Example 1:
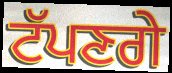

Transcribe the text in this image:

ਟੱਪਣਗੇ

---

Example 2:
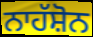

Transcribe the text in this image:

ਨਾਹੱਸ਼ੋਨ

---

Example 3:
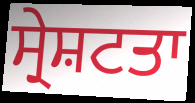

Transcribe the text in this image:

ਸ੍ਰੇਸ਼ਟਤਾ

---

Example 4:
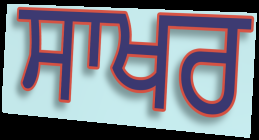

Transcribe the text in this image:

ਸਾਖਰ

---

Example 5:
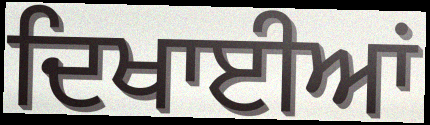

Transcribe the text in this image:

ਦਿਖਾਈਆਂ